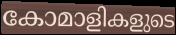
കോമാളികളുടെ